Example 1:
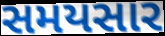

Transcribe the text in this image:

સમયસાર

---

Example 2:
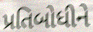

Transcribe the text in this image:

પ્રતિબોધીને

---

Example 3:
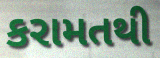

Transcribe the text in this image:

કરામતથી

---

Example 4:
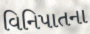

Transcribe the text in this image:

વિનિપાતના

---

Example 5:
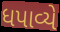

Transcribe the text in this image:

ધપાવ્યે